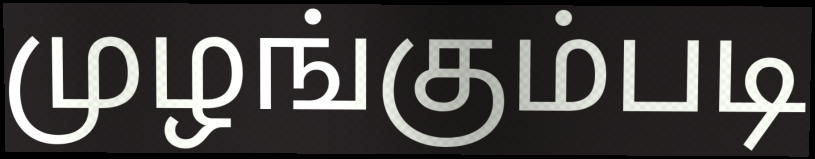
முழங்கும்படி